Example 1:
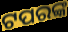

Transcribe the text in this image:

ଟପରଙ୍କ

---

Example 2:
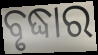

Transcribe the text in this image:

ବୃଦ୍ଧାର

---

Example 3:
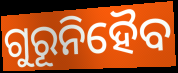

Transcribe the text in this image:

ଗୁରୂନିହୈବ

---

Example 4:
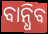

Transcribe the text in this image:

ବାନ୍ଧିବ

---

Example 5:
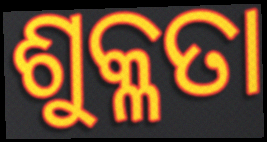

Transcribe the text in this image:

ଶୁକ୍ଳତା